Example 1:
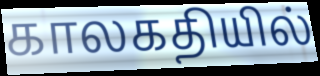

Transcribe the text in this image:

காலகதியில்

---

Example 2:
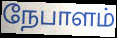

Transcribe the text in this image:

நேபாளம்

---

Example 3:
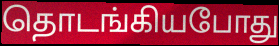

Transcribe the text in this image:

தொடங்கியபோது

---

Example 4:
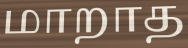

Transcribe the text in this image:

மாறாத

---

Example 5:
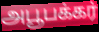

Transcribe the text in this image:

அபூபக்கர்